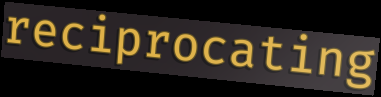
reciprocating